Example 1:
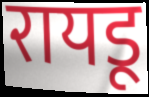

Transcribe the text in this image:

रायडू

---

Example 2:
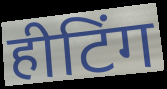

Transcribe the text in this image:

हीटिंग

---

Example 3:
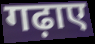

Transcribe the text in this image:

गढ़ाए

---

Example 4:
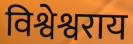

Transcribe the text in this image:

विश्वेश्वराय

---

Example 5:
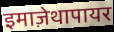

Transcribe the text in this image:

इमाज़ेथापायर